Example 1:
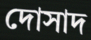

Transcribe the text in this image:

দোসাদ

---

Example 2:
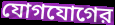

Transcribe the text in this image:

যোগযোগের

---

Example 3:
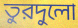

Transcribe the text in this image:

তুরদুলো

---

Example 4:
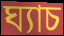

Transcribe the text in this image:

ঘ্যাচ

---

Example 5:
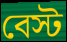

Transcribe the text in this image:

বেস্ট